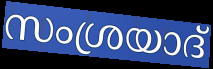
സംശ്രയാദ്